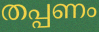
തപ്പണം